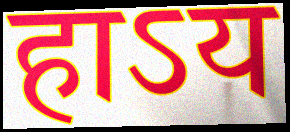
हाऽय